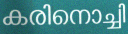
കരിനൊച്ചി